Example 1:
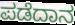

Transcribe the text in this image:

ಪಡೆದಾನ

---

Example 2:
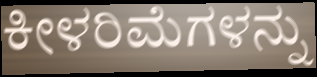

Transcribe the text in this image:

ಕೀಳರಿಮೆಗಳನ್ನು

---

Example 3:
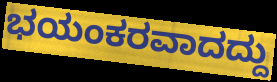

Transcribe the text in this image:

ಭಯಂಕರವಾದದ್ದು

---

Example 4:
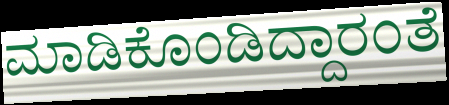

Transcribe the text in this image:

ಮಾಡಿಕೊಂಡಿದ್ದಾರಂತೆ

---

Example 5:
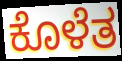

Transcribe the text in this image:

ಕೊಳೆತ